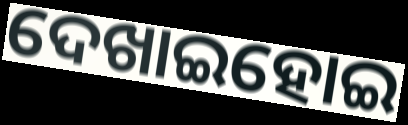
ଦେଖାଇହୋଇ